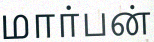
மார்பன்